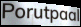
Porutpaal